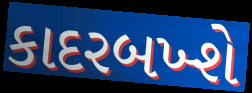
કાદરબખ્શે